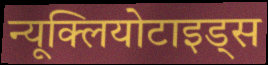
न्यूक्लियोटाइड्स